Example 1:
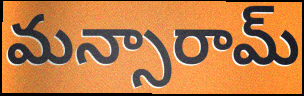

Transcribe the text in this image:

మన్సారామ్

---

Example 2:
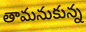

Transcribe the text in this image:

తామనుకున్న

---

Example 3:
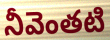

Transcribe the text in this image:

నీవెంతటి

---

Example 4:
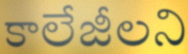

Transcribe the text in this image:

కాలేజీలని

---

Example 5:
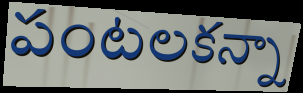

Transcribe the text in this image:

పంటలకన్నా